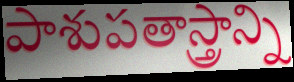
పాశుపతాస్త్రాన్ని